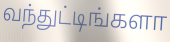
வந்துட்டிங்களா